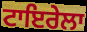
ਟਾਇਰੇਲਾ